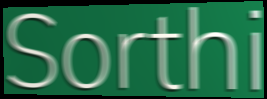
Sorthi